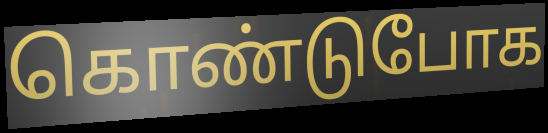
கொண்டுபோக